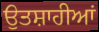
ਉਤਸ਼ਾਹੀਆਂ